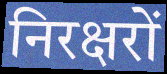
निरक्षरों